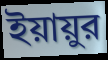
ইয়ায়ুর